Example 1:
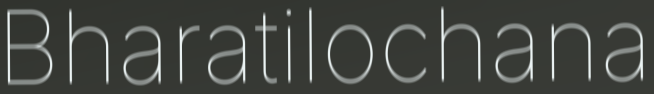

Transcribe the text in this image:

Bharatilochana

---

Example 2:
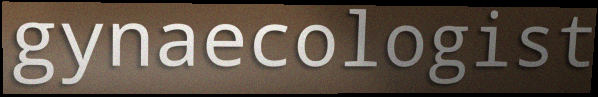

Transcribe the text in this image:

gynaecologist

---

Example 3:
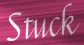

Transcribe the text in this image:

Stuck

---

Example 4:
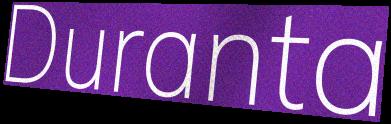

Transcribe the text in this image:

Duranta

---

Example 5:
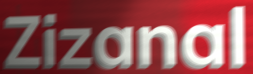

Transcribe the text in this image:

Zizanal